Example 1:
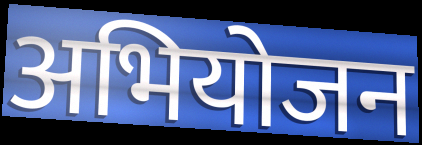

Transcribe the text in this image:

अभियोजन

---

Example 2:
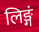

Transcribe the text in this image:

लिङ्गं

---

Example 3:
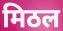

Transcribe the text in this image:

मिठल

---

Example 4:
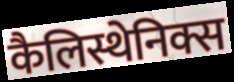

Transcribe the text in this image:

कैलिस्थेनिक्स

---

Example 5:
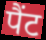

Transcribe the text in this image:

पैंट